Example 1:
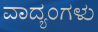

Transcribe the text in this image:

ವಾದ್ಯಂಗಳು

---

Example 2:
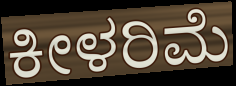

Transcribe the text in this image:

ಕೀಳರಿಮೆ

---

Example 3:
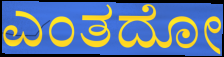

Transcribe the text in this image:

ಎಂತದೋ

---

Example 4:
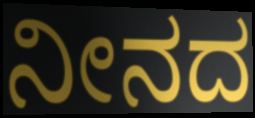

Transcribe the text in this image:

ನೀನದ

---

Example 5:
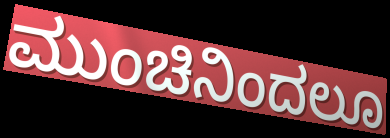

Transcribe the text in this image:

ಮುಂಚಿನಿಂದಲೂ